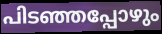
പിടഞ്ഞപ്പോഴും